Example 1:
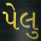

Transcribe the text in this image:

પેલુ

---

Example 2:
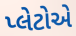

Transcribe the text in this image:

પ્લેટોએ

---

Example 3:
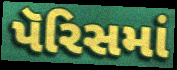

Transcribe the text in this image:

પૅરિસમાં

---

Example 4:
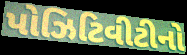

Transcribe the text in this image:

પોઝિટિવીટીનો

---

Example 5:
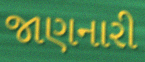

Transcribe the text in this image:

જાણનારી